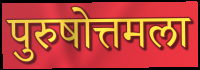
पुरुषोत्तमला